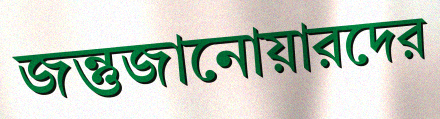
জন্তুজানোয়ারদের